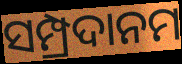
ସମ୍ପ୍ରଦାନମ